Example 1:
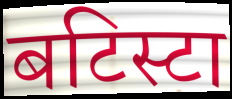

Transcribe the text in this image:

बटिस्टा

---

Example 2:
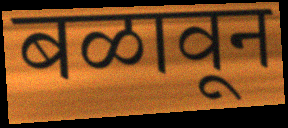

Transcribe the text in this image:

बळावून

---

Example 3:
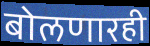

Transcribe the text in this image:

बोलणारही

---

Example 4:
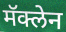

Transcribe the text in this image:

मॅक्लेन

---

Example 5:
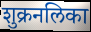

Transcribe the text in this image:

शुक्रनलिका